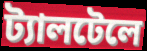
ট্যালটেলে